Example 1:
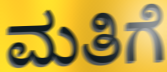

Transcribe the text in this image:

ಮತಿಗೆ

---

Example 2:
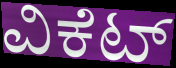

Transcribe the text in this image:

ವಿಕೆಟ್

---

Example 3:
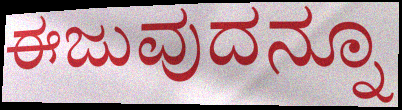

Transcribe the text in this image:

ಈಜುವುದನ್ನೂ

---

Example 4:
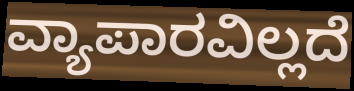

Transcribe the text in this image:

ವ್ಯಾಪಾರವಿಲ್ಲದೆ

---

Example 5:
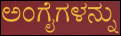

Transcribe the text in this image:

ಅಂಗೈಗಳನ್ನು